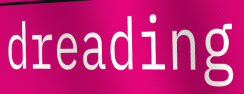
dreading